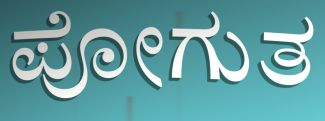
ಪೋಗುತ